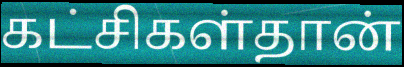
கட்சிகள்தான்